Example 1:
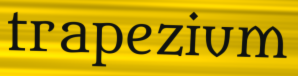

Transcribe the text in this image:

trapezium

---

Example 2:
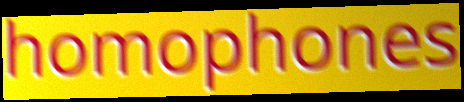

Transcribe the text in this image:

homophones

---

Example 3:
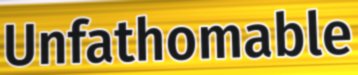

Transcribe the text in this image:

Unfathomable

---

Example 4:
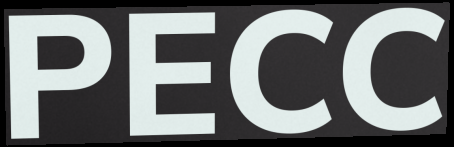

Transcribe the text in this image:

PECC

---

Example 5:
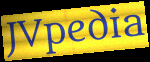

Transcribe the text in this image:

JVpedia